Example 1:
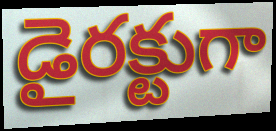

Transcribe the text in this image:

డైరక్టుగా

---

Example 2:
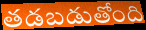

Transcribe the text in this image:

తడబడుతోంది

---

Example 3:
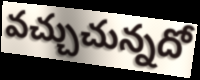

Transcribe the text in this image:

వచ్చుచున్నదో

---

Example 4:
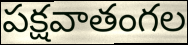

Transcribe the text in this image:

పక్షవాతంగల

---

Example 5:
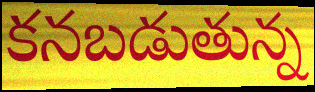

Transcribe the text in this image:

కనబడుతున్న